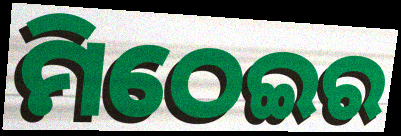
ମିଠେଇର